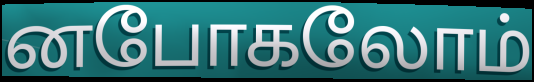
னபோகலோம்